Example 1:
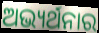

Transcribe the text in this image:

ଅଭ୍ୟର୍ଥନାର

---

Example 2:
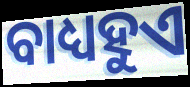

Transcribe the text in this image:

ବାଧ୍ୟହୁଏ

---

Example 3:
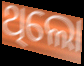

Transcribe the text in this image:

ଥିଲୋ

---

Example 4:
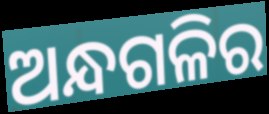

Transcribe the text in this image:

ଅନ୍ଧଗଳିର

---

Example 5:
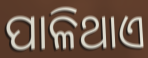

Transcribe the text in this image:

ପାଳିଥାଏ